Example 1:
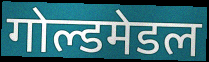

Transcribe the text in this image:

गोल्डमेडल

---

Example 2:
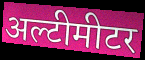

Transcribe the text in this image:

अल्टीमीटर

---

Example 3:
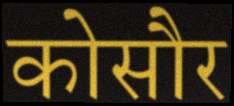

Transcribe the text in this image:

कोसौर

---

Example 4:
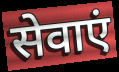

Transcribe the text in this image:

सेवाएं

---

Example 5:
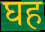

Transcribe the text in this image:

घह